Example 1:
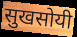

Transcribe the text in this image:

सुखसोयी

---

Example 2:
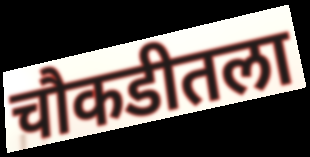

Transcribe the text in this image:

चौकडीतला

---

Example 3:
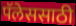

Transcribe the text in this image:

पॅलेससाठी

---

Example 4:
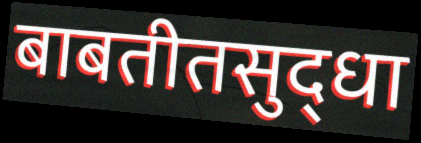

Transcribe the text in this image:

बाबतीतसुद्धा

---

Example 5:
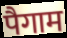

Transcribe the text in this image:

पैगाम